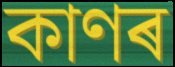
কাণৰ